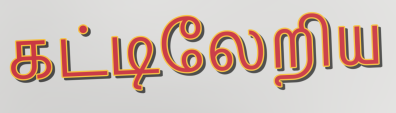
கட்டிலேறிய